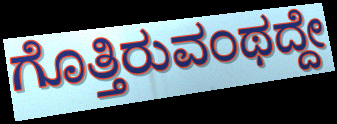
ಗೊತ್ತಿರುವಂಥದ್ದೇ